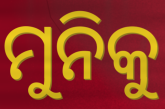
ମୁନିକୁ